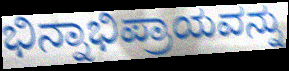
ಭಿನ್ನಾಭಿಪ್ರಾಯವನ್ನು